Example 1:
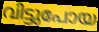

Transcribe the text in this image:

വിട്ടുപോയ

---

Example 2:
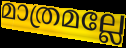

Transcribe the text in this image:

മാത്രമല്ലേ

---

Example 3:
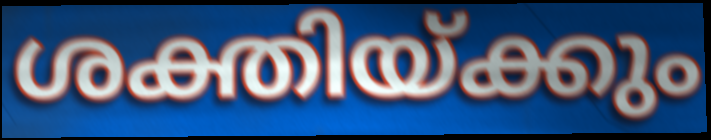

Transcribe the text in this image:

ശക്തിയ്ക്കും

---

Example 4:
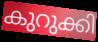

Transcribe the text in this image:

കുറുക്കി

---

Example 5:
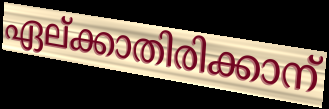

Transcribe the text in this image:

ഏല്ക്കാതിരിക്കാന്